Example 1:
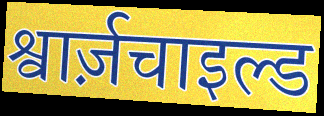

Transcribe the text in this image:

श्वार्ज़चाइल्ड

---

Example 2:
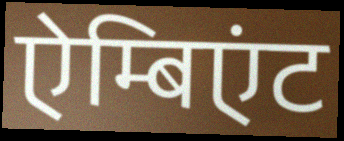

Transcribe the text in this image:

ऐम्बिएंट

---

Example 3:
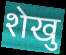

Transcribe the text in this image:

शेखु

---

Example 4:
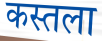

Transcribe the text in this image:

कस्तला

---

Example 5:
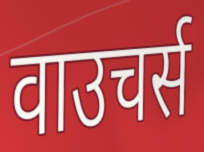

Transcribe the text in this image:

वाउचर्स